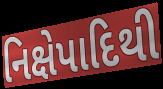
નિક્ષેપાદિથી